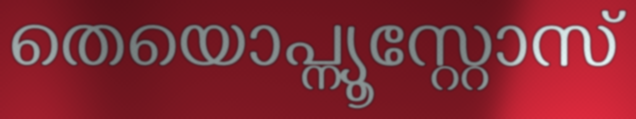
തെയൊപ്ന്യൂസ്റ്റോസ്